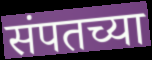
संपतच्या